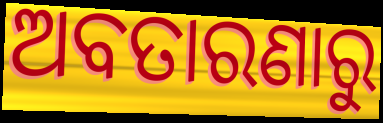
ଅବତାରଣାରୁ